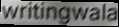
writingwala